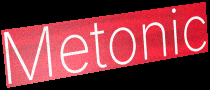
Metonic